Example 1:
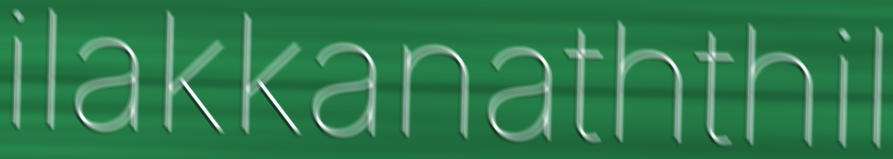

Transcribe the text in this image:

ilakkanaththil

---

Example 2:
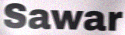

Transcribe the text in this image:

Sawar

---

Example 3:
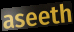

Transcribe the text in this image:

aseeth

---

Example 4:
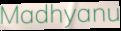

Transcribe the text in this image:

Madhyanu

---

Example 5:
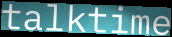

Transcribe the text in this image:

talktime